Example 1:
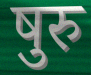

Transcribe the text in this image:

षुरु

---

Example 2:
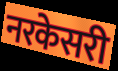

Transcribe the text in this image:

नरकेसरी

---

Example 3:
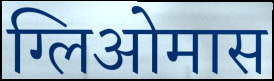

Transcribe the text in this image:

ग्लिओमास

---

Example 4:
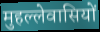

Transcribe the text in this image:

मुहल्लेवासियों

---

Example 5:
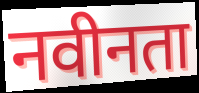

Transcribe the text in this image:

नवीनता